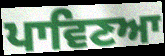
ਪਾਵਿਣਆ